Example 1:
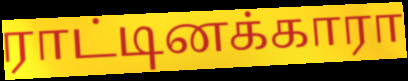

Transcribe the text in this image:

ராட்டினக்காரா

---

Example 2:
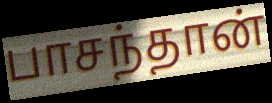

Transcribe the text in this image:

பாசந்தான்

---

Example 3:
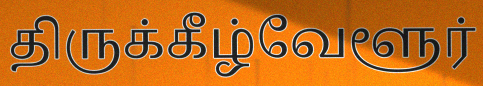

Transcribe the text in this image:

திருக்கீழ்வேளூர்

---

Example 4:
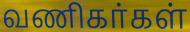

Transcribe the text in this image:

வணிகர்கள்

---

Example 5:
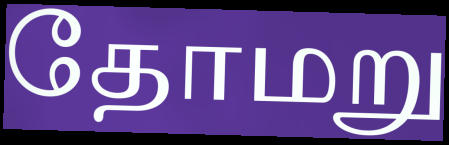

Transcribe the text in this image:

தோமறு